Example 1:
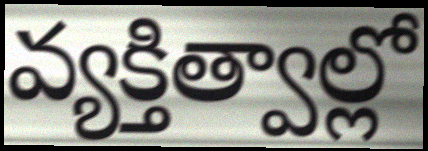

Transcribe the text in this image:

వ్యక్తిత్వాల్లో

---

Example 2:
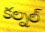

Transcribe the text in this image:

కల్నల్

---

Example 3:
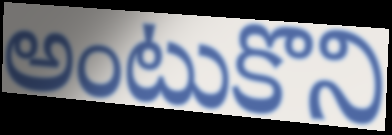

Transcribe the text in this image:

అంటుకొని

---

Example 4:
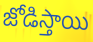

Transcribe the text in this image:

జోడిస్తాయి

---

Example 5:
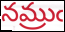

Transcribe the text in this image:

నమ్రుఁ